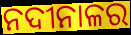
ନଦୀନାଳର